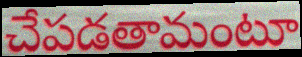
చేపడతామంటూ